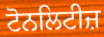
ਟੋਨਲਿਟੀਜ਼